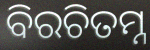
ବିରଚିତମ୍ନ